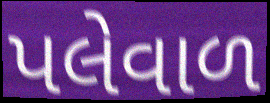
પલેવાળ